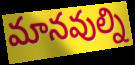
మానవుల్ని